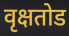
वृक्षतोड